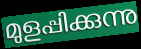
മുളപ്പിക്കുന്നു